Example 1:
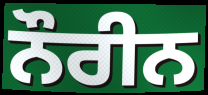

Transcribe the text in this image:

ਨੌਰੀਨ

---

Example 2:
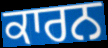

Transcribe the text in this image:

ਕਾਰਨ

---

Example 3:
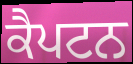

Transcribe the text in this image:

ਕੈਪਟਨ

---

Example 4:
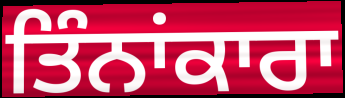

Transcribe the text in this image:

ਤਿੰਨਾਂਕਾਰਾ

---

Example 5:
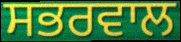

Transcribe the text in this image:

ਸਭਰਵਾਲ